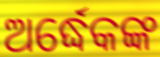
ଅର୍ଦ୍ଧେକଙ୍କ